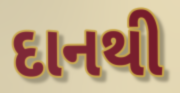
દાનથી